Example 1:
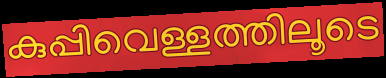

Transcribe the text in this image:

കുപ്പിവെള്ളത്തിലൂടെ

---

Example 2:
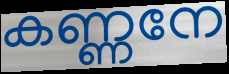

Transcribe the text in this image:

കണ്ണനേ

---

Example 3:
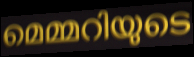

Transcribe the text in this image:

മെമ്മറിയുടെ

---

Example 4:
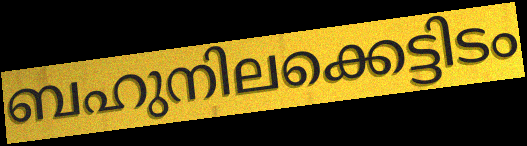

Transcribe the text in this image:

ബഹുനിലക്കെട്ടിടം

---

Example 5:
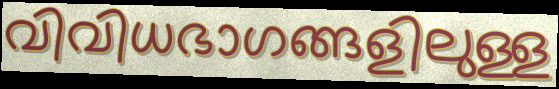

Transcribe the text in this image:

വിവിധഭാഗങ്ങളിലുള്ള